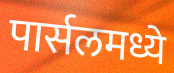
पार्सलमध्ये